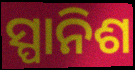
ସ୍ପାନିଶ